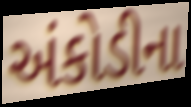
અંકોડીના